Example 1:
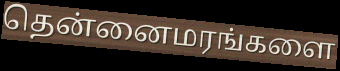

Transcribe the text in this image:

தென்னைமரங்களை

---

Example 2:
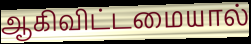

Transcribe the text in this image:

ஆகிவிட்டமையால்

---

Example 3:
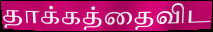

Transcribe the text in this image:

தாக்கத்தைவிட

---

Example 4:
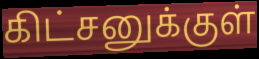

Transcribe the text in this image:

கிட்சனுக்குள்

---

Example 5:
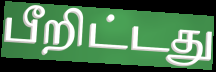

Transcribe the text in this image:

பீறிட்டது